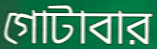
গোটাবার